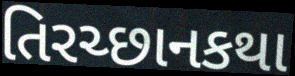
તિરચ્છાનકથા